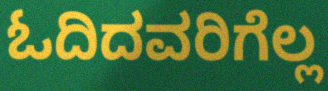
ಓದಿದವರಿಗೆಲ್ಲ